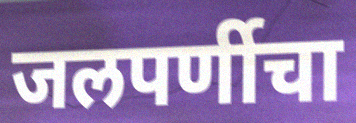
जलपर्णीचा